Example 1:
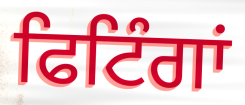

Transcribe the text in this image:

ਫਿਟਿੰਗਾਂ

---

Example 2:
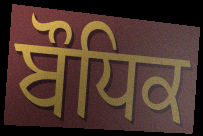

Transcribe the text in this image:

ਬੌਧਿਕ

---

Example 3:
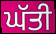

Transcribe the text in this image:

ਘੱਤੀ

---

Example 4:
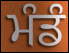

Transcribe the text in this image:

ਮੰਡੰ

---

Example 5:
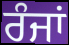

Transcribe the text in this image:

ਰੰਜਾਂ